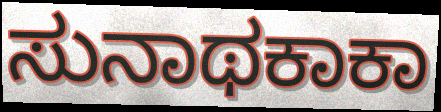
ಸುನಾಥಕಾಕಾ